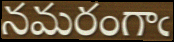
నమరంగాఁ